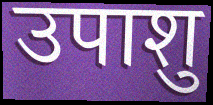
उपाशु